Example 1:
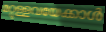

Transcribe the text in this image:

മറ്റുള്ളവയേക്കാൾ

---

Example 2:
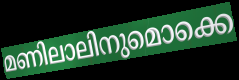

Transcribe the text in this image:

മണിലാലിനുമൊക്കെ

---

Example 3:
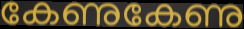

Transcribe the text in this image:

കേണുകേണു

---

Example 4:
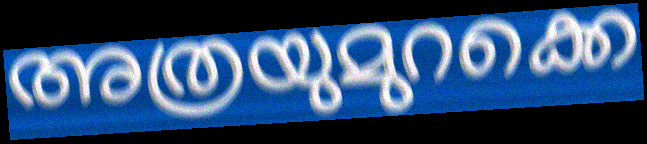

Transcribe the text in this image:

അത്രയുമുറക്കെ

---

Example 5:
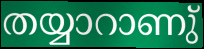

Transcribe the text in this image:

തയ്യാറാണു്